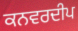
ਕਨਵਰਦੀਪ